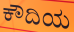
ಕೌದಿಯ